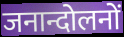
जनान्दोलनों